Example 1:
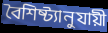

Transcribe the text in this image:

বৈশিষ্ট্যানুযায়ী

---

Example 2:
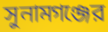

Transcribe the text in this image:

সুনামগঞ্জের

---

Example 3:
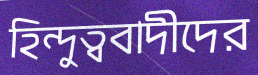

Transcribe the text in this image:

হিন্দুত্ববাদীদের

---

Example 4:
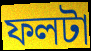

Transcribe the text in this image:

ফলটা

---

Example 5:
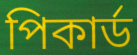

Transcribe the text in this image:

পিকার্ড